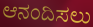
ಆನಂದಿಸಲು